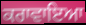
ਕਰਾਵਾਇਆ